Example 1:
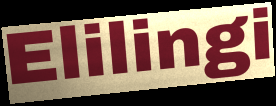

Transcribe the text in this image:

Elilingi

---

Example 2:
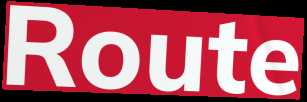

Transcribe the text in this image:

Route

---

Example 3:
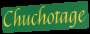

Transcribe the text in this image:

Chuchotage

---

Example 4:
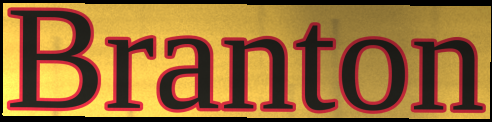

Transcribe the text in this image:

Branton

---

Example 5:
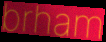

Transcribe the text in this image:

brham